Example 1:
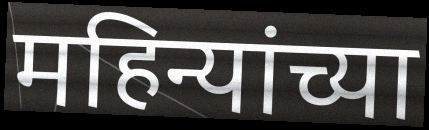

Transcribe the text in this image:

महिन्यांच्या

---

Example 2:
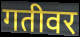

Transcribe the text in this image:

गतीवर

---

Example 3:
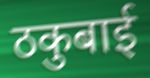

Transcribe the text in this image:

ठकुबाई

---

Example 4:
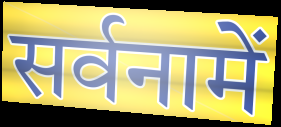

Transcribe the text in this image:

सर्वनामें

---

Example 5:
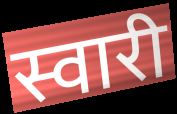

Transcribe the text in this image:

स्वारी